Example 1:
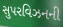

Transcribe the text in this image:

સુપરવિઝનની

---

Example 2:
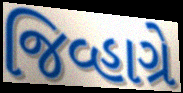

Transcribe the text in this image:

જિવ્હાગ્રે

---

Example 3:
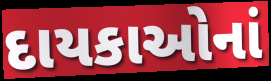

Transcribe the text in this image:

દાયકાઓનાં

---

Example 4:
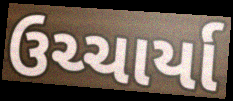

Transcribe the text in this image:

ઉચ્ચાર્યા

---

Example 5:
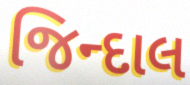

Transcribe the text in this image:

જિન્દાલ